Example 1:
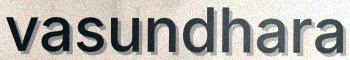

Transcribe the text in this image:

vasundhara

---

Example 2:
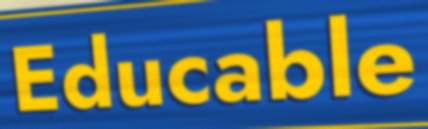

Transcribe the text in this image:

Educable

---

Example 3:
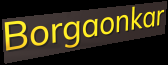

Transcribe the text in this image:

Borgaonkar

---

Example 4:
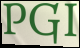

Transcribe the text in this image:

PGI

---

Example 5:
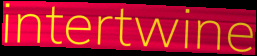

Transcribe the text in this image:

intertwine